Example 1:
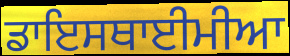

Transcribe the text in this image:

ਡਾਇਸਥਾਈਮੀਆ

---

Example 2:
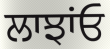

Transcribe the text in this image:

ਲਾਝਾਂਓ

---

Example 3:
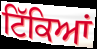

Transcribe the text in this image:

ਟਿੱਕਿਆਂ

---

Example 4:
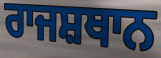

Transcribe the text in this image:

ਰਾਜਸ਼ਥਾਨ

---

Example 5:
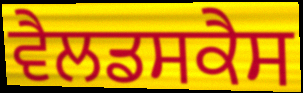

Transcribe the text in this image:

ਵੈਲਡਸਕੈਸ